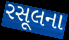
રસૂલના